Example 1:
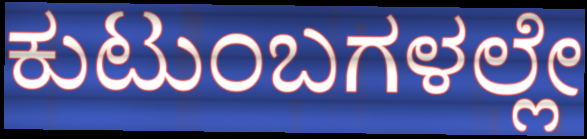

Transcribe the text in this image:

ಕುಟುಂಬಗಳಲ್ಲೇ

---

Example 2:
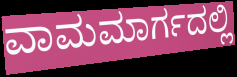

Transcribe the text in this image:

ವಾಮಮಾರ್ಗದಲ್ಲಿ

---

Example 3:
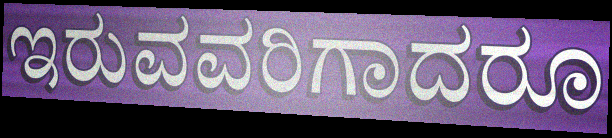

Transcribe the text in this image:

ಇರುವವರಿಗಾದರೂ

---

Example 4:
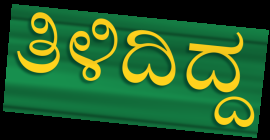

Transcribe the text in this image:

ತಿಳಿದಿದ್ದ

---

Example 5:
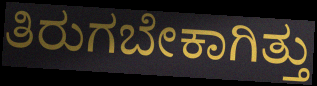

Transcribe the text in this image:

ತಿರುಗಬೇಕಾಗಿತ್ತು